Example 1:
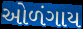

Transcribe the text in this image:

ઓળંગાય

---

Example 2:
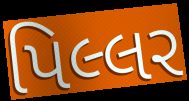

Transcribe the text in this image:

પિલ્લર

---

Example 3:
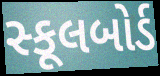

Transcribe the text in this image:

સ્કૂલબોર્ડ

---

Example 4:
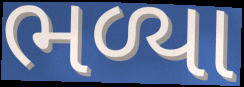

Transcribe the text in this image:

ભળ્યા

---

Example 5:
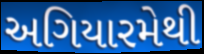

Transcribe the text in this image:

અગિયારમેથી